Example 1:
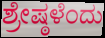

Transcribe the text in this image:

ಶ್ರೇಷ್ಠಳೆಂದು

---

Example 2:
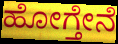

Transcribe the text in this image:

ಹೋಗ್ತೇನೆ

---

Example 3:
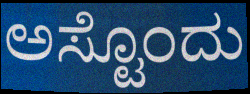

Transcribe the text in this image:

ಅಸ್ಟೊಂದು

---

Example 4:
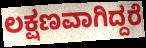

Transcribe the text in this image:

ಲಕ್ಷಣವಾಗಿದ್ದರೆ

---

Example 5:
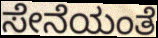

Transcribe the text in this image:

ಸೇನೆಯಂತೆ